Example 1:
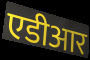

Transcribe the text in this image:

एडीआर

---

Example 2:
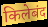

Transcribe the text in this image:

किलेबंद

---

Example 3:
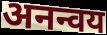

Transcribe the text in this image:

अनन्वय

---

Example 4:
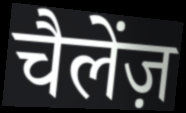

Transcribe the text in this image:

चैलेंज़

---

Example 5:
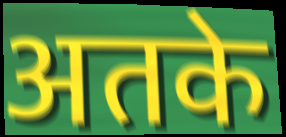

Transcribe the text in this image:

अतके